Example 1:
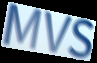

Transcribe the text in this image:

MVS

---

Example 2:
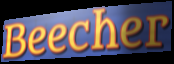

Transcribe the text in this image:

Beecher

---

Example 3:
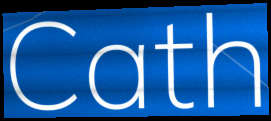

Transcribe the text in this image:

Cath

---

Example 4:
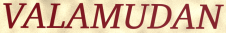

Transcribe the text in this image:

VALAMUDAN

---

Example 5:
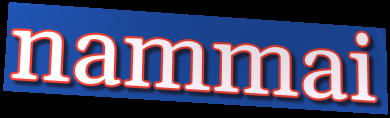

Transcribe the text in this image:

nammai